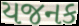
યજનક